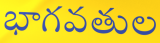
భాగవతుల